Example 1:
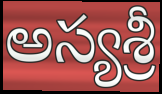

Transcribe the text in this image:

అస్యశ్రీ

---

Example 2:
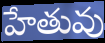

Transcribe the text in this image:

హేతువు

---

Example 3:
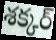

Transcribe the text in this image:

శక్కర్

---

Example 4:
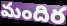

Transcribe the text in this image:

మందిర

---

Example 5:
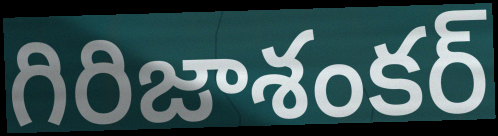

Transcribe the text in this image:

గిరిజాశంకర్